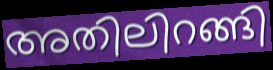
അതിലിറങ്ങി